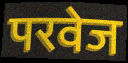
परवेज